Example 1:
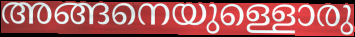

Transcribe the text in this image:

അങ്ങനെയുള്ളൊരു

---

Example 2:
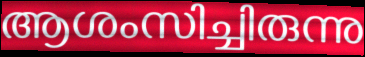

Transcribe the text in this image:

ആശംസിച്ചിരുന്നു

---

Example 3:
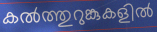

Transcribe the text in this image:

കൽത്തുറുങ്കുകളിൽ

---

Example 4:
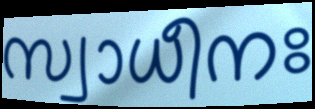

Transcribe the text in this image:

സ്വാധീനഃ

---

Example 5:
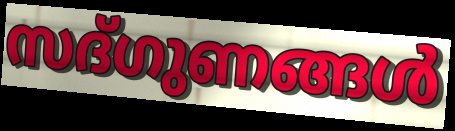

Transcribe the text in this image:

സദ്ഗുണങ്ങൾ